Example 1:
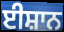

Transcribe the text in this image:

ਈਸ਼ਾਨ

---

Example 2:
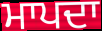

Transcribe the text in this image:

ਮਾਪਦਾ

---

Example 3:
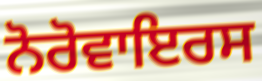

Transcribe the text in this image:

ਨੋਰੋਵਾਇਰਸ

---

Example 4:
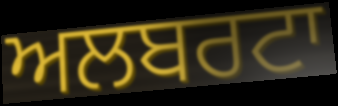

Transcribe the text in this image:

ਅਲਬਰਟਾ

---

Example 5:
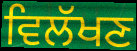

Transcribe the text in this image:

ਵਿਲੱਖਣ